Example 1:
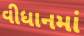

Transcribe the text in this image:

વીધાનમાં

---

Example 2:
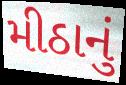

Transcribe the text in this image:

મીઠાનું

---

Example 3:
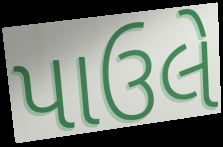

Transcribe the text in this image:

પાઉલે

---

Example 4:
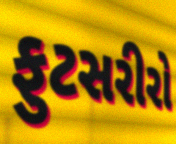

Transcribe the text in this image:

ફુટસરીરો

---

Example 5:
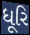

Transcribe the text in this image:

ધૂરિ